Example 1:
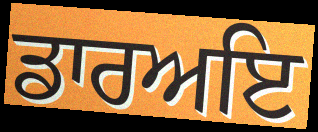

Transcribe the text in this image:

ਡਾਰਅਇ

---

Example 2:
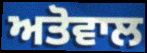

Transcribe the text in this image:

ਅਤੋਵਾਲ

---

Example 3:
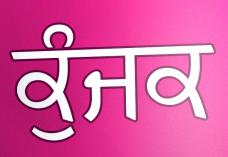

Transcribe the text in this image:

ਕੁੰਜਕ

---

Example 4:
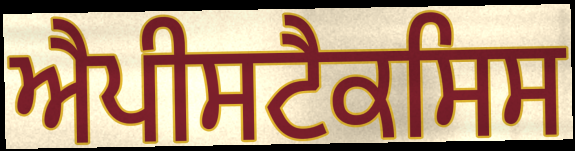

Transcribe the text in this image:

ਐਪੀਸਟੈਕਸਿਸ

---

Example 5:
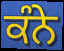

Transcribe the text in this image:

ਕੰਨੇ